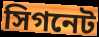
সিগনেট